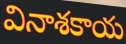
వినాశకాయ